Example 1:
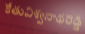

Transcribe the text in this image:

కేతువిశ్వనాథరెడ్డి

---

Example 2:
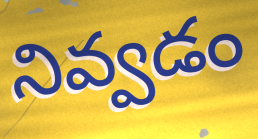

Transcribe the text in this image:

నివ్వడం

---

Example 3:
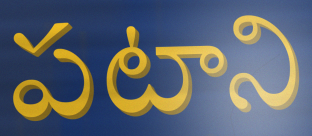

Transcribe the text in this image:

పటాని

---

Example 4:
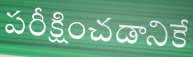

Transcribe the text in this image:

పరీక్షించడానికే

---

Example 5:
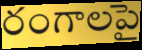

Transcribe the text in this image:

రంగాలపై